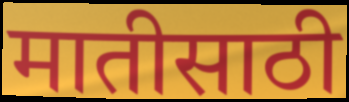
मातीसाठी